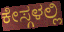
ಕೇಸ್ಗಳಲ್ಲಿ